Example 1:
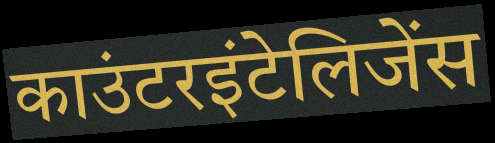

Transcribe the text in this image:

काउंटरइंटेलिजेंस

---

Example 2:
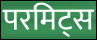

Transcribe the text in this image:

परमिट्स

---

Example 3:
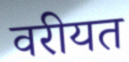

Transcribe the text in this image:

वरीयत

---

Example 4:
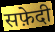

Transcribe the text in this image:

सफ़ेदी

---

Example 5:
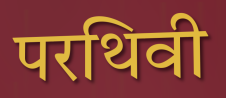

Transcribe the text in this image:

परथिवी